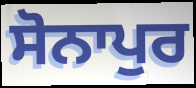
ਸੋਨਾਪੁਰ